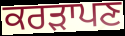
ਕਰੜਾਪਣ